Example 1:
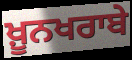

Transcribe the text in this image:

ਖ਼ੂਨਖਰਾਬੇ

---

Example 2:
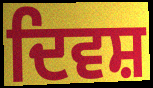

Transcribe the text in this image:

ਦਿਵਸ਼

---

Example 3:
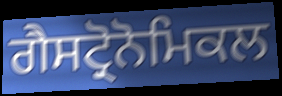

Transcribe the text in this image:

ਗੈਸਟ੍ਰੋਨੋਮਿਕਲ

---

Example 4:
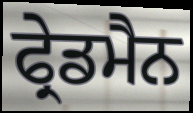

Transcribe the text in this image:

ਫ੍ਰੇਡਮੈਨ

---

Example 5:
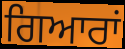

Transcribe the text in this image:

ਗਿਆਰਾਂ